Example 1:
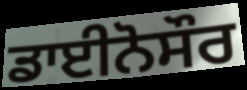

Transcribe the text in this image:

ਡਾਈਨੋਸੌਰ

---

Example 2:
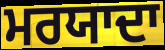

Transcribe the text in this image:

ਮਰਯਾਦਾ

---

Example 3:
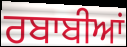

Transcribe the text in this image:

ਰਬਾਬੀਆਂ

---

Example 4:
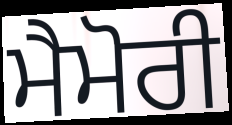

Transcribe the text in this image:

ਮੈਮੋਰੀ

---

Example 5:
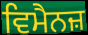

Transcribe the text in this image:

ਵਿਮੈਨਜ਼